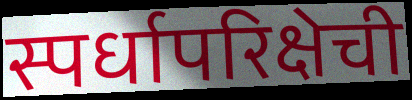
स्पर्धापरिक्षेची